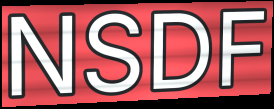
NSDF